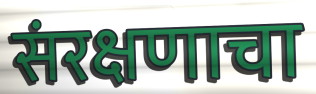
संरक्षणाचा